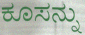
ಕೂಸನ್ನು